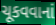
ચૂકવવાનાં